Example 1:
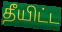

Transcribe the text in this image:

தீயிட்ட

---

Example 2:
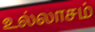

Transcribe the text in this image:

உல்லாசம்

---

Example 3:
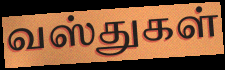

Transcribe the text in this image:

வஸ்துகள்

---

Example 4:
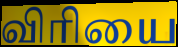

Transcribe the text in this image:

விரியை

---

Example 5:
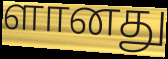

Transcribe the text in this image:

ளானது